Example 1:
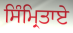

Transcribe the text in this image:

ਸਿੰਮ੍ਰਿਤਾਏ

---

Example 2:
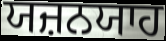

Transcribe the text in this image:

ਯਜ਼ਨਯਾਹ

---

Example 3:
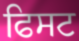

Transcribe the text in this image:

ਫਿਸਟ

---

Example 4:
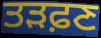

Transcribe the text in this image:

ਤੜਫ਼ਣ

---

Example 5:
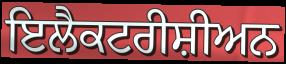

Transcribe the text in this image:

ਇਲੈਕਟਰੀਸ਼ੀਅਨ